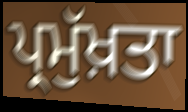
ਪ੍ਰਮੁੱਖ਼ਤਾ